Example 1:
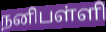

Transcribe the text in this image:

நனிபள்ளி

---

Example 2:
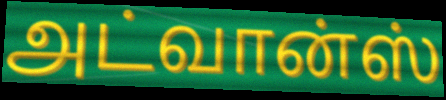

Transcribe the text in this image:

அட்வான்ஸ்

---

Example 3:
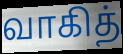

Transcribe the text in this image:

வாகித்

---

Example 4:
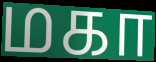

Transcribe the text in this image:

மகா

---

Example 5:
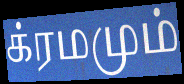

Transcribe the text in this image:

க்ரமமும்